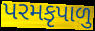
પરમકૃપાળુ